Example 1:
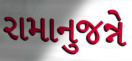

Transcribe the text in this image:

રામાનુજન્ને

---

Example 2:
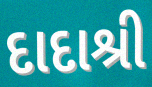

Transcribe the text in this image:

દાદાશ્રી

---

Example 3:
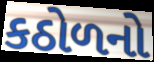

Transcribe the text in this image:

કઠોળનો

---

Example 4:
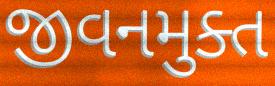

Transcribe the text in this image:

જીવનમુક્ત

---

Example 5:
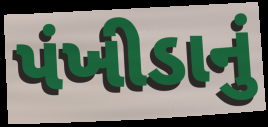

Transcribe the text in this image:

પંખીડાનું